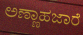
ಅಣ್ಣಾಹಜಾರೆ